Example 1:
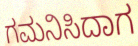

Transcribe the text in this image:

ಗಮನಿಸಿದಾಗ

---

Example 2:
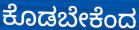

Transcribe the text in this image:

ಕೊಡಬೇಕೆಂದ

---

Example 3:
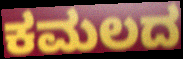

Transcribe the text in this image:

ಕಮಲದ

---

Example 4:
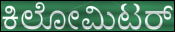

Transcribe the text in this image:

ಕಿಲೋಮಿಟರ್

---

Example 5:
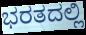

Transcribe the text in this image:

ಭರತದಲ್ಲಿ